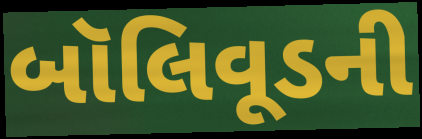
બૉલિવૂડની